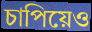
চাপিয়েও